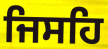
ਜਿਸਹਿ